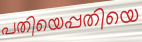
പതിയെപ്പതിയെ